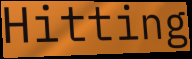
Hitting